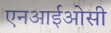
एनआईओसी